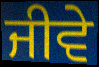
ਜੀਵੇ